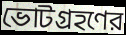
ভোটগ্রহণের